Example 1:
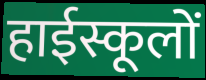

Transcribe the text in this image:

हाईस्कूलों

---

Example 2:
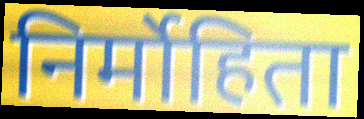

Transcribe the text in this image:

निर्मोहिता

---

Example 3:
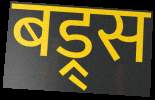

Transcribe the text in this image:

बड्र्स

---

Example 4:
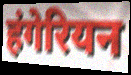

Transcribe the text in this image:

हंगेरियन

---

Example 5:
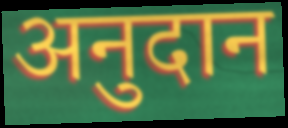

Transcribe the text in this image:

अनुदान